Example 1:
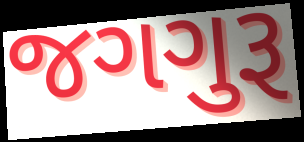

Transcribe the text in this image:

જગગુરૂ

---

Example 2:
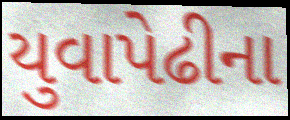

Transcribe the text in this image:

યુવાપેઢીના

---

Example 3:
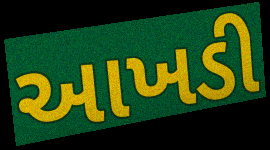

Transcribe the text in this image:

આખડી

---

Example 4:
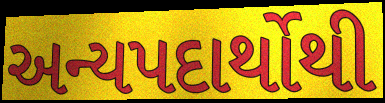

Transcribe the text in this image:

અન્યપદાર્થોથી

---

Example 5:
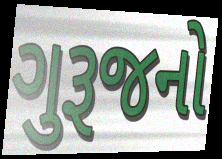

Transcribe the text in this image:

ગુરૂજનો